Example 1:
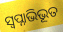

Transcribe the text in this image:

ସ୍ଵପ୍ନାଭିଭୂତ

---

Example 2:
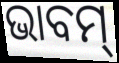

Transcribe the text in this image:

ଭାବମ୍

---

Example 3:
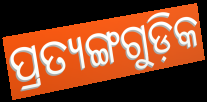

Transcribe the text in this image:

ପ୍ରତ୍ୟଙ୍ଗଗୁଡ଼ିକ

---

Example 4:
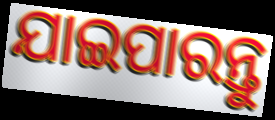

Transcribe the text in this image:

ଯାଇପାରନ୍ତୁ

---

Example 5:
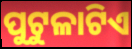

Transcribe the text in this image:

ପୁଟୁଳାଟିଏ